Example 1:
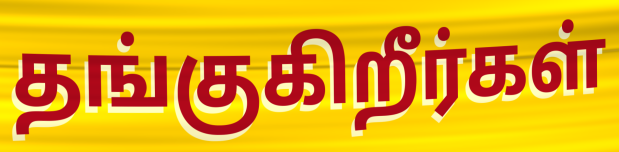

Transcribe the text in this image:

தங்குகிறீர்கள்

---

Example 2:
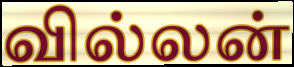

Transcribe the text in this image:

வில்லன்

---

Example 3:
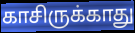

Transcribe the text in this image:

காசிருக்காது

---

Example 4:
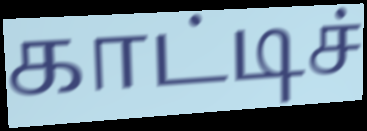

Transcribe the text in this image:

காட்டிச்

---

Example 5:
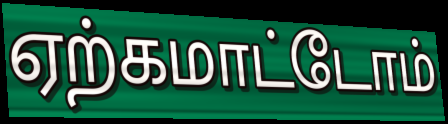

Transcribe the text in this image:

ஏற்கமாட்டோம்